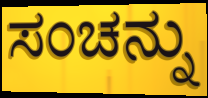
ಸಂಚನ್ನು